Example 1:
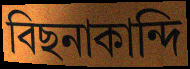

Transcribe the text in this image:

বিছনাকান্দি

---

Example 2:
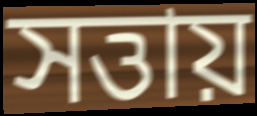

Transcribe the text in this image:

সত্তায়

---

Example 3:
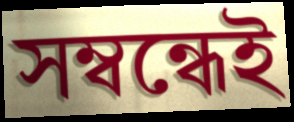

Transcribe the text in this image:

সম্বন্ধেই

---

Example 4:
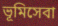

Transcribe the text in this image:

ভূমিসেবা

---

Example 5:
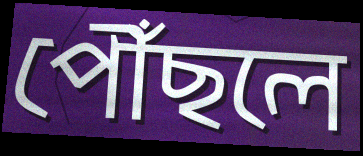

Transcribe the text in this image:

পৌঁছলে